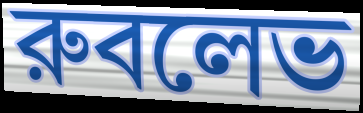
রুবলেভ